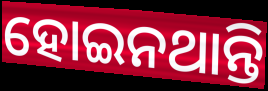
ହୋଇନଥାନ୍ତି